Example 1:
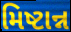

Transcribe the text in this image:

મિષ્ટાન્ન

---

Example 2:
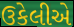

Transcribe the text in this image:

ઉકેલીએ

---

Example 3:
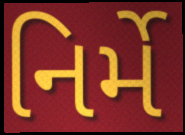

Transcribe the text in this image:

નિર્મે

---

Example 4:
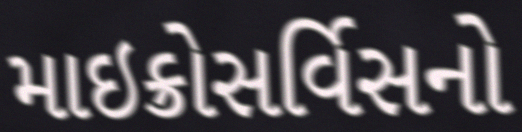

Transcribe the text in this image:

માઇક્રોસર્વિસનો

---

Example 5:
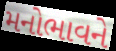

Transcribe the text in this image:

મનોભાવને